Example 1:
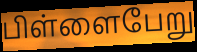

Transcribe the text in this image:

பிள்ளைபேறு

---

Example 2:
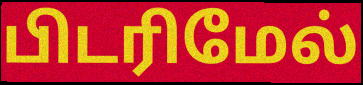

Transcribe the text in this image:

பிடரிமேல்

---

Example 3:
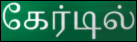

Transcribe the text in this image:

கேர்டில்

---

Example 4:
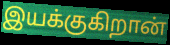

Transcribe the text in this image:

இயக்குகிறான்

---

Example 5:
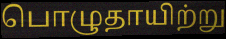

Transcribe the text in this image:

பொழுதாயிற்று